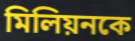
মিলিয়নকে